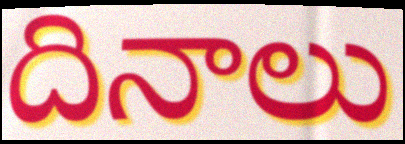
దినాలు